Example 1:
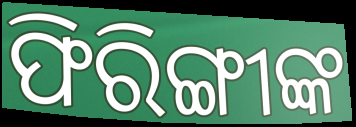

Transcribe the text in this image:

ଫିରିଙ୍ଗୀଙ୍କ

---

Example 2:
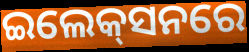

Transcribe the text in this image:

ଇଲେକ୍‍ସନରେ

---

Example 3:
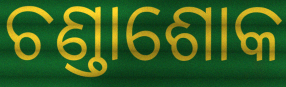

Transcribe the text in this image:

ଚଣ୍ଡାଶୋକ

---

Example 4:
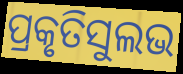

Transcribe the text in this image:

ପ୍ରକୃତିସୁଲଭ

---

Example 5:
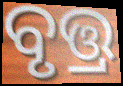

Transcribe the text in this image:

ବୃତ୍ତ୍ର